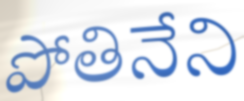
పోతినేని